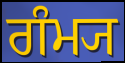
ਗੰਮ੍ਯ